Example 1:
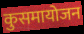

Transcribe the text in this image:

कुसमायोजन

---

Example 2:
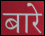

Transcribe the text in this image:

बारे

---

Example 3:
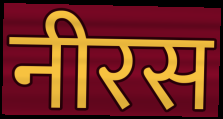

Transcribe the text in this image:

नीरस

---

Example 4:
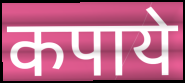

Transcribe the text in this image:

कपाये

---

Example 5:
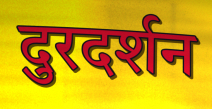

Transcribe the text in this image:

दुरदर्शन